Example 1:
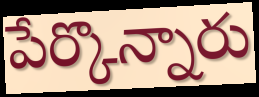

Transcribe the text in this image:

పేర్కొన్నారు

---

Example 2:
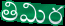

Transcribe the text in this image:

తిమిర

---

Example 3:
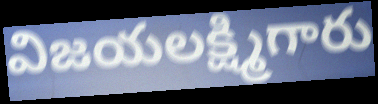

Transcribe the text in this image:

విజయలక్ష్మిగారు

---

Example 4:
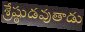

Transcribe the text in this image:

శ్రేష్ఠుడవుతాడు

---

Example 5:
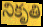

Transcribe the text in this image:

నికృతి